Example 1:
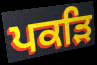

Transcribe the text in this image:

ਪਕੜਿ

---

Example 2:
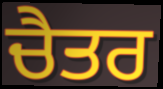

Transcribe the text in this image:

ਚੈਤਰ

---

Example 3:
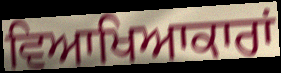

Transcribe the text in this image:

ਵਿਆਖਿਆਕਾਰਾਂ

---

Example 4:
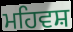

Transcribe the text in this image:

ਮਹਿਵਸ਼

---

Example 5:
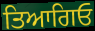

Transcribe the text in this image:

ਤਿਆਗਿਓ